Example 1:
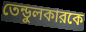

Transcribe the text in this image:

তেন্ডুলকারকে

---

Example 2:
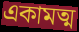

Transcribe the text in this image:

একামত্ম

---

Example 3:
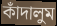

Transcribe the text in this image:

কাঁদালুম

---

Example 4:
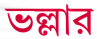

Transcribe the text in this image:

ভল্লার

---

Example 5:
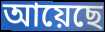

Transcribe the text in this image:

আয়েছে